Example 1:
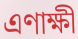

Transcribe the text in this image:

এণাক্ষী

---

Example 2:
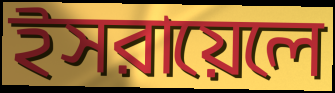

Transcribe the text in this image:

ইসরায়েলে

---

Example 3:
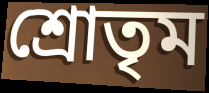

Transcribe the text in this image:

শ্রোতৃম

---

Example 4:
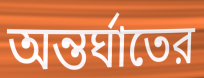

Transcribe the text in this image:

অন্তর্ঘাতের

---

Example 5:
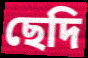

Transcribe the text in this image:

ছেদি